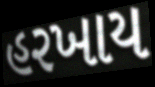
હરખાય